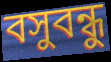
বসুবন্ধু